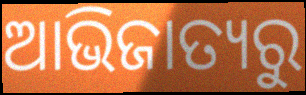
ଆଭିଜାତ୍ୟରୁ